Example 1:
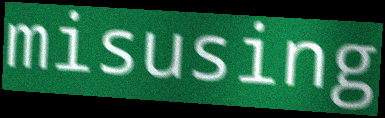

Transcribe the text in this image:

misusing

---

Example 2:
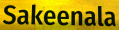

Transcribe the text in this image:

Sakeenala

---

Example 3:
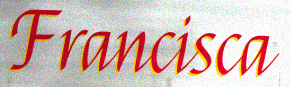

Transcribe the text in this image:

Francisca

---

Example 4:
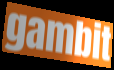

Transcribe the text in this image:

gambit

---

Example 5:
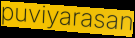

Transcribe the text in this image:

puviyarasan